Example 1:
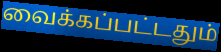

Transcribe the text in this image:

வைக்கப்பட்டதும்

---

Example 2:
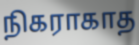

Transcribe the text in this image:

நிகராகாத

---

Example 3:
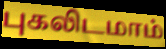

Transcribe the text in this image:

புகலிடமாம்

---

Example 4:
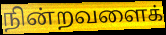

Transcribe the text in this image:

நின்றவளைக்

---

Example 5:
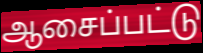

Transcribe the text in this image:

ஆசைப்பட்டு